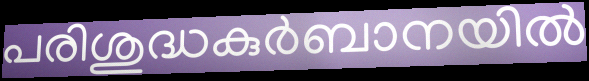
പരിശുദ്ധകുർബാനയിൽ